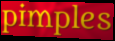
pimples